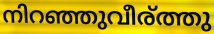
നിറഞ്ഞുവീര്ത്തു